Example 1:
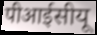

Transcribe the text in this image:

पीआईसीयू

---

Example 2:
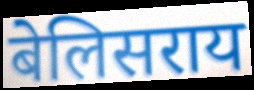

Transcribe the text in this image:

बेलिसराय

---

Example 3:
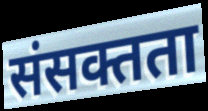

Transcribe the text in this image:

संसक्तता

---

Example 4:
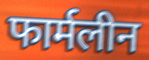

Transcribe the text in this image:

फार्मलीन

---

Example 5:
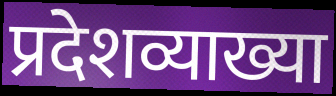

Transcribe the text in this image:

प्रदेशव्याख्या